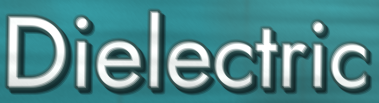
Dielectric